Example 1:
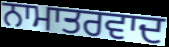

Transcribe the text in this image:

ਨਾਮਾਤਰਵਾਦ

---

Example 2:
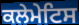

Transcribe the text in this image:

ਕਲੇਮੇਟਿਸ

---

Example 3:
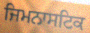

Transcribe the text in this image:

ਜਿਮਨਾਸਟਿਕ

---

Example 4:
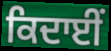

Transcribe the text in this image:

ਕਿਦਾਈਂ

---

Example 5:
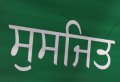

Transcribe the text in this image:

ਸੁਸਜਿਤ